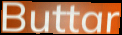
Buttar